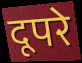
दूपरे